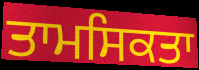
ਤਾਮਸਿਕਤਾ